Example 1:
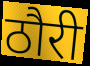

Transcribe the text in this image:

ठौरी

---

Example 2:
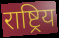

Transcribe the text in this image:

राष्ट्रिय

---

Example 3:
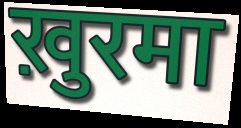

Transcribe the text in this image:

ख़ुरमा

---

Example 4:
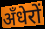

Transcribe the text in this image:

अँधेरों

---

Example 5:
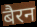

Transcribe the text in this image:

बैरन